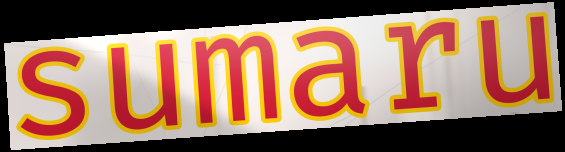
sumaru